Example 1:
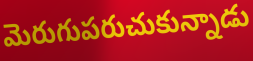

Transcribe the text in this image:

మెరుగుపరుచుకున్నాడు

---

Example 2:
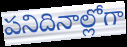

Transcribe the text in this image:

పనిదినాల్లోగా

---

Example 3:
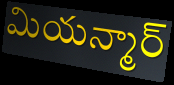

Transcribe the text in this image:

మియన్మార్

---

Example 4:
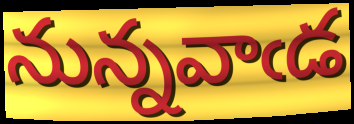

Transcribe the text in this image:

నున్నవాఁడ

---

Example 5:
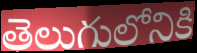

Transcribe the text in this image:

తెలుగులోనికి